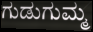
ಗುಡುಗುಮ್ಮ